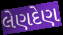
લેણદેણ